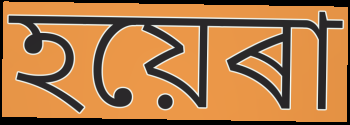
হয়েৰা